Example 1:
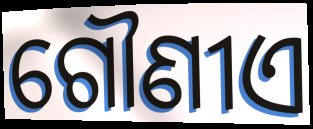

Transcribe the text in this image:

ଗୌଣୀଏ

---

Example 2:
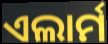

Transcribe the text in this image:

ଏଲାର୍ମ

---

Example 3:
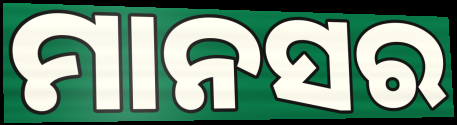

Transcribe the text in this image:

ମାନସର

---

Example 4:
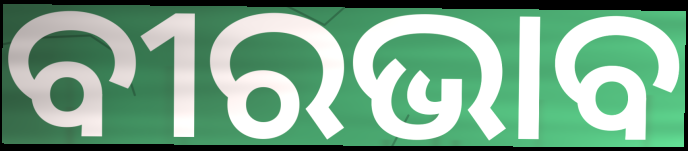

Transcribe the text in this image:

ବୀରଭାବ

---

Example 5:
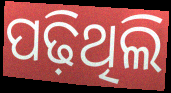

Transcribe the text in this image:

ପଢ଼ିଥିଲି